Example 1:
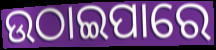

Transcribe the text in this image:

ଉଠାଇପାରେ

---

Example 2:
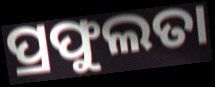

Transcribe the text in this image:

ପ୍ରଫୁଲତା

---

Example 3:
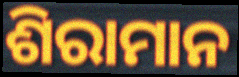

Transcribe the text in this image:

ଶିରାମାନ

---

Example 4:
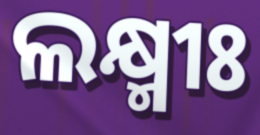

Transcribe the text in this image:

ଲକ୍ଷ୍ମୀଃ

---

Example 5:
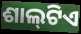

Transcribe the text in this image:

ଶାଲ୍‌ଟିଏ